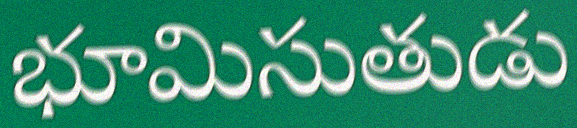
భూమిసుతుడు